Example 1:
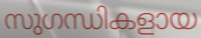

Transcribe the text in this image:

സുഗന്ധികളായ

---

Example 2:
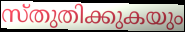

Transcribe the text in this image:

സ്തുതിക്കുകയും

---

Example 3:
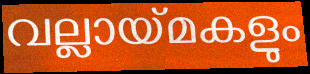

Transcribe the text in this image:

വല്ലായ്മകളും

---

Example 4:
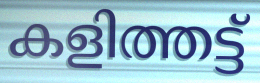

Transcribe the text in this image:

കളിത്തട്ട്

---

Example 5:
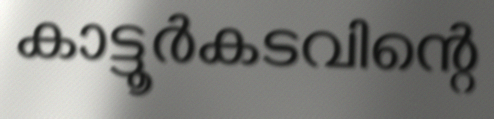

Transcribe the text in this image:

കാട്ടൂർകടവിന്റെ